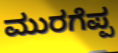
ಮುರಗೆಪ್ಪ